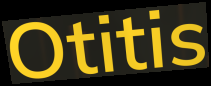
Otitis